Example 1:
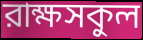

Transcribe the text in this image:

রাক্ষসকুল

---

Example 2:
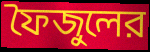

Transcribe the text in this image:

ফৈজুলের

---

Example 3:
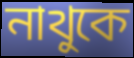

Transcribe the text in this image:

নাথুকে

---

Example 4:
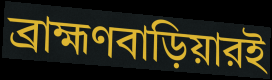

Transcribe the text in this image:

ব্রাহ্মণবাড়িয়ারই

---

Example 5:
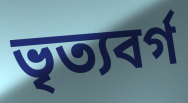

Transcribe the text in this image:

ভৃত্যবর্গ